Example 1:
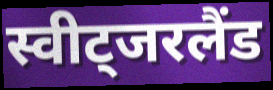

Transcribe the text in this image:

स्वीट्जरलैंड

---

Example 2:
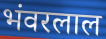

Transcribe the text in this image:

भंवरलाल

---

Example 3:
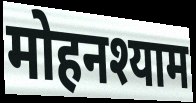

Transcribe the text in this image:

मोहनश्याम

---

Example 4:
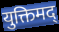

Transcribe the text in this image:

युक्तिमद्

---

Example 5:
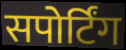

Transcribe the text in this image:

सपोर्टिंग